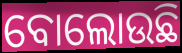
ବୋଲୋଉଛି